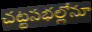
చట్టసభల్లోనూ